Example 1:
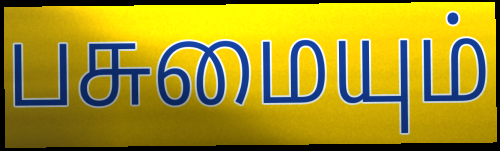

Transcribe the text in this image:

பசுமையும்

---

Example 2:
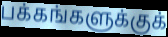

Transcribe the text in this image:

பக்கங்களுக்குக்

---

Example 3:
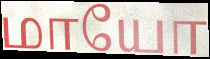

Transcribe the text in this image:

மாயோ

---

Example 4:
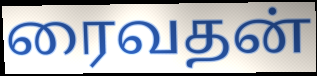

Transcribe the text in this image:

ரைவதன்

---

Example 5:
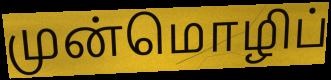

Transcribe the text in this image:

முன்மொழிப்